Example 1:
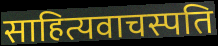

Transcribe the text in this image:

साहित्यवाचस्पति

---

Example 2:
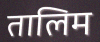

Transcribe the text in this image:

तालिम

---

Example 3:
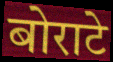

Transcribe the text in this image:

बोराटे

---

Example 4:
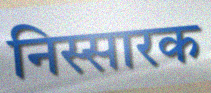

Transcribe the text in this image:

निस्सारक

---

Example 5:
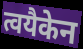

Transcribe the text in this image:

त्वयैकेन